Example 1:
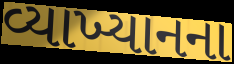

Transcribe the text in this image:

વ્યાખ્યાનના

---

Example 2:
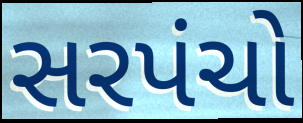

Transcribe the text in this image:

સરપંચો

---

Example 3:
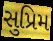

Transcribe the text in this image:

સુપ્રિમ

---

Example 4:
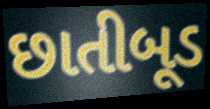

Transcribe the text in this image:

છાતીબૂડ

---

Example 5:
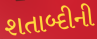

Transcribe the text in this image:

શતાબ્દીની